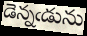
డెన్నఁడును